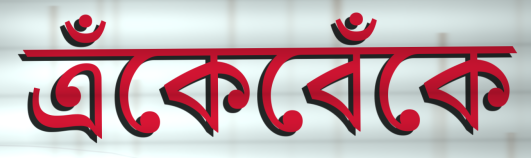
ত্রঁকেবেঁকে